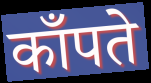
काँपते